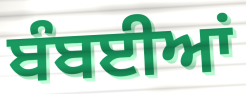
ਬੰਬਈਆਂ